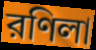
রণিলা